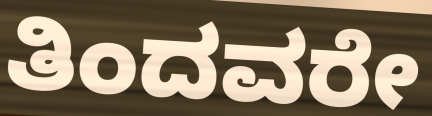
ತಿಂದವರೇ